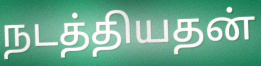
நடத்தியதன்